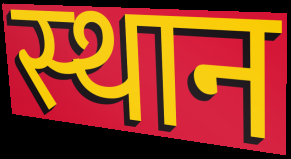
स्‍थान